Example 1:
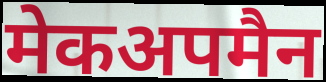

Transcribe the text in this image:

मेकअपमैन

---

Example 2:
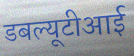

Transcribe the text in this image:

डबल्यूटीआई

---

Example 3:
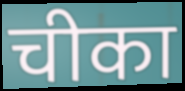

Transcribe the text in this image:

चीका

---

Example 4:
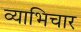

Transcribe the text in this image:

व्याभिचार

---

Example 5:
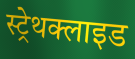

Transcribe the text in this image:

स्ट्रेथक्लाइड